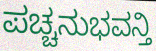
ಪಚ್ಚನುಭವನ್ತಿ